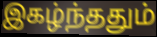
இகழ்ந்ததும்